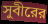
সুবীরের